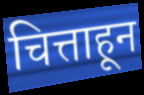
चित्ताहून